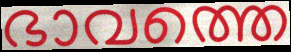
ഭാവത്തെ